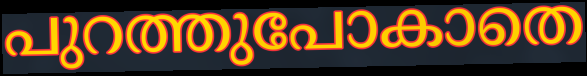
പുറത്തുപോകാതെ